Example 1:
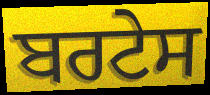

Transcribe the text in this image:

ਬਰਟੇਸ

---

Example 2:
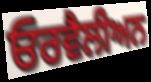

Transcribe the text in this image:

ਓਰਵੈਲੀਅਨ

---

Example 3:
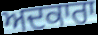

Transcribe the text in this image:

ਅਦਕਾਰਾ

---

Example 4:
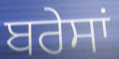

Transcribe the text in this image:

ਬਰੇਸਾਂ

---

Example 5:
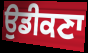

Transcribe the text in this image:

ਉਡੀਕਣਾ